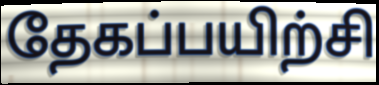
தேகப்பயிற்சி